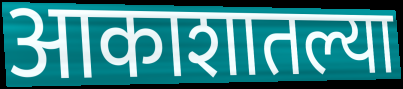
आकाशातल्या